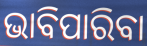
ଭାବିପାରିବା